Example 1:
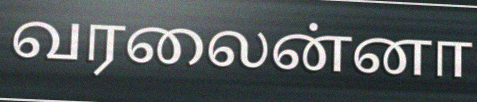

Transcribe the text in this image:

வரலைன்னா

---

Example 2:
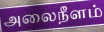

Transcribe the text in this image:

அலைநீளம்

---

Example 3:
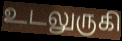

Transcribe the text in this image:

உடலுருகி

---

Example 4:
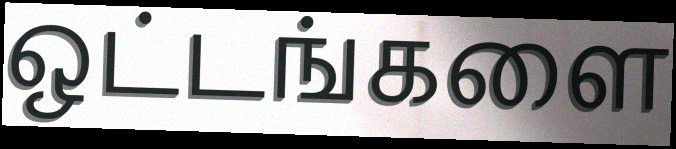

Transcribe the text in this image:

ஒட்டங்களை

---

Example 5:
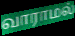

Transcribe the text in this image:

வாராமல்